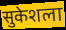
सुकेशला